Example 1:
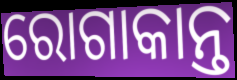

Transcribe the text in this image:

ରୋଗାକାନ୍ତ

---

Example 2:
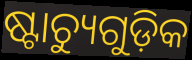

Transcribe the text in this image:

ଷ୍ଟାଚ୍ୟୁଗୁଡ଼ିକ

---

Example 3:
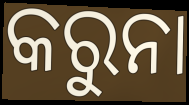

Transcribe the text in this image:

କରୁନା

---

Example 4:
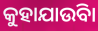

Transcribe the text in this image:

କୁହାଯାଉିବା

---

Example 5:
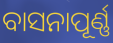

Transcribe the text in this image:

ବାସନାପୂର୍ଣ୍ଣ